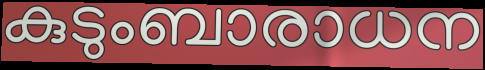
കുടുംബാരാധന